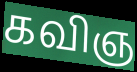
கவிஞ